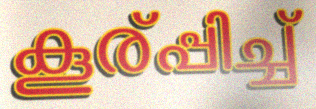
കൂര്പ്പിച്ച്